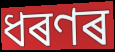
ধৰণৰ